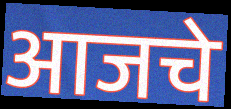
आजचे